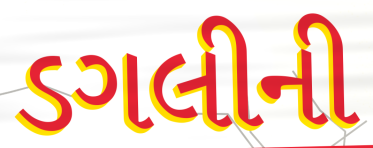
ડગલીની